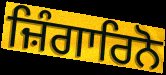
ਜ਼ਿੰਗਾਰਿਨੋ